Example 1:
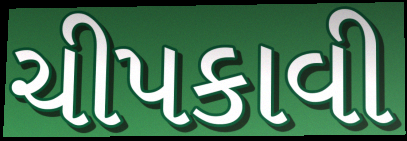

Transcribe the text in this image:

ચીપકાવી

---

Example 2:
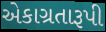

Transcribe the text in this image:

એકાગ્રતારૂપી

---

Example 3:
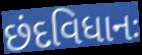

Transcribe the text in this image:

છંદવિધાનઃ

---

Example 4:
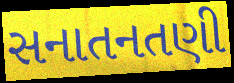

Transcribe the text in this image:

સનાતનતણી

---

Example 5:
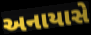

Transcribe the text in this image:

અનાયાસે